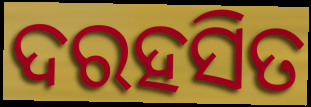
ଦରହସିତ